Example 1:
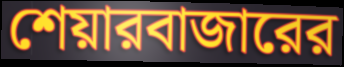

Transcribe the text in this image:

শেয়ারবাজারের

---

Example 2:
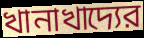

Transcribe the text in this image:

খানাখাদ্যের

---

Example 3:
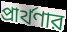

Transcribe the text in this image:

প্রার্থণার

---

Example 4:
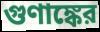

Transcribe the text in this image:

গুণাঙ্কের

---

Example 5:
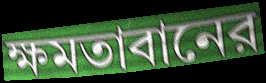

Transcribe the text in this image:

ক্ষমতাবানের